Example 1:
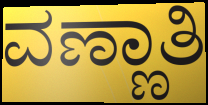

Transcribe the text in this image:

ವಣ್ಣಾತಿ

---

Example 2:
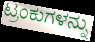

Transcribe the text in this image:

ಟ್ರಂಕುಗಳನ್ನು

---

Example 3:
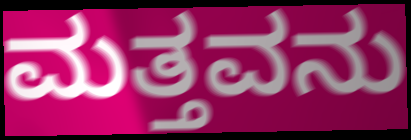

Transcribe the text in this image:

ಮತ್ತವನು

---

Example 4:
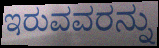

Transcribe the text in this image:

ಇರುವವರನ್ನು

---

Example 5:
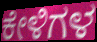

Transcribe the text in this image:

ಕೇಳಿಗಳ